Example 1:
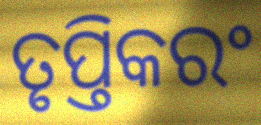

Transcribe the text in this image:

ତୃପ୍ତିକରଂ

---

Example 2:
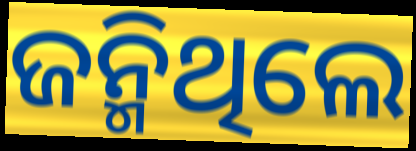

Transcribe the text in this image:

ଜନ୍ମିଥିଲେ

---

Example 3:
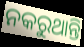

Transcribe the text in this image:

ନକରୁଥାନ୍ତି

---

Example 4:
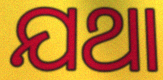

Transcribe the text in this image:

ଯଥା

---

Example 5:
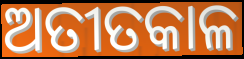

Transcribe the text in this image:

ଅତୀତକାଳ